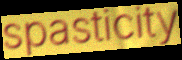
spasticity